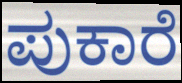
ಪುಕಾರೆ